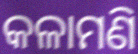
କଳାମଣି